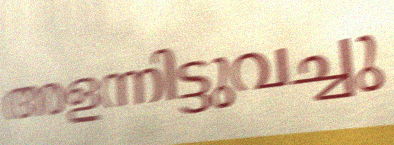
അളന്നിട്ടുവച്ചു